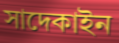
সাদেকাইন